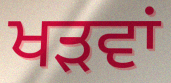
ਖੜਵਾਂ